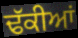
ਢੱਕੀਆਂ